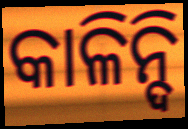
କାଳିନ୍ଦି